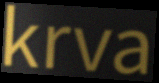
krva